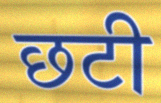
छटी